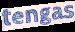
tengas